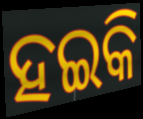
ହଇକି